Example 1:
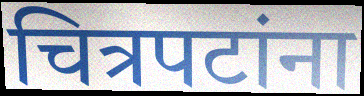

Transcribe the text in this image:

चित्रपटांना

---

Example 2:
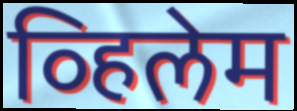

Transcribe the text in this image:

व्हिलेम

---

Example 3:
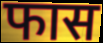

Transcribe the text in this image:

फास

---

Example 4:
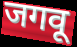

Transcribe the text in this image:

जगवू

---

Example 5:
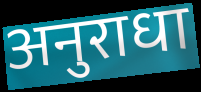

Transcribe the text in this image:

अनुराधा